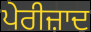
ਪੇਰੀਜ਼ਾਦ